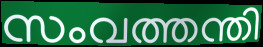
സംവത്തന്തി